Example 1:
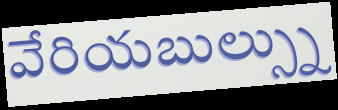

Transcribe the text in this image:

వేరియబుల్స్ను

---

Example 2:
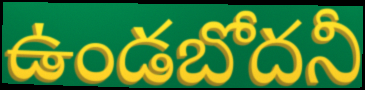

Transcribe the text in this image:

ఉండబోదనీ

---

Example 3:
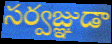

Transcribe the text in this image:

సర్వజ్ఞుడా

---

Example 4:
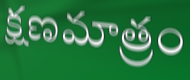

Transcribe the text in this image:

క్షణమాత్రం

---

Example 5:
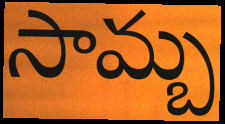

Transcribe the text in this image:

సామ్బ